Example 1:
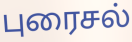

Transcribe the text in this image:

புரைசல்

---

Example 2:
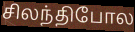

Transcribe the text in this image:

சிலந்திபோல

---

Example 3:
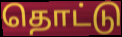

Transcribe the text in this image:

தொட்டு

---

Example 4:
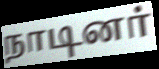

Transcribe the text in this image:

நாடினர்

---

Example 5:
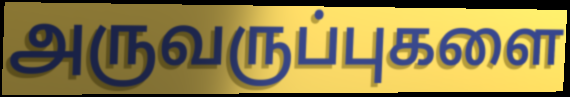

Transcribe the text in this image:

அருவருப்புகளை